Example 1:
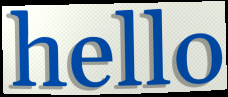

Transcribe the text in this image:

hello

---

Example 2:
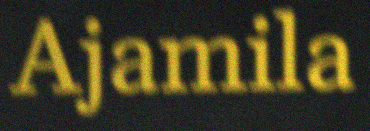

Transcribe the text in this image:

Ajamila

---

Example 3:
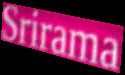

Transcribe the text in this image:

Srirama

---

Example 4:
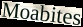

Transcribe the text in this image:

Moabites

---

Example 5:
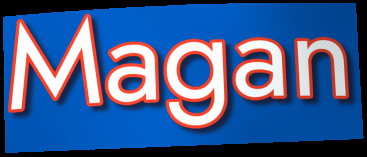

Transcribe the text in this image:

Magan